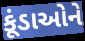
કૂંડાઓને